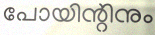
പോയിന്റിനും